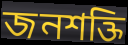
জনশক্তি